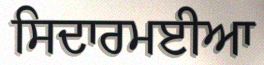
ਸਿਦਾਰਮਈਆ